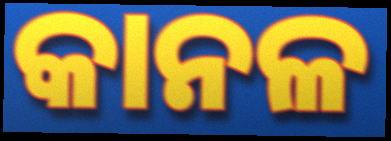
କାନଳ